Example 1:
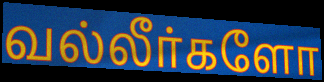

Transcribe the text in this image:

வல்லீர்களோ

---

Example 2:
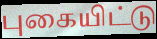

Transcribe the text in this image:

புகையிட்டு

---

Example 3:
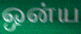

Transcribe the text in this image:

ஒன்ய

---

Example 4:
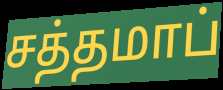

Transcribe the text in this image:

சத்தமாப்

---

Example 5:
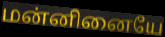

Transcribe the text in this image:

மன்னினையே